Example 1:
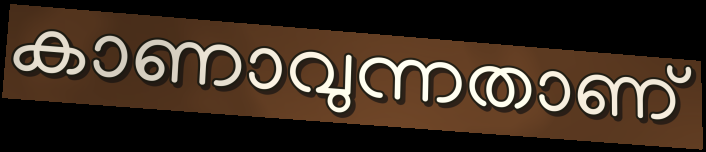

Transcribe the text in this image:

കാണാവുന്നതാണ്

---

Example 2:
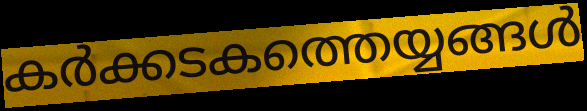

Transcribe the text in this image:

കർക്കടകത്തെയ്യങ്ങൾ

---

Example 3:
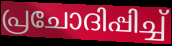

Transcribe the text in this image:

പ്രചോദിപ്പിച്ച്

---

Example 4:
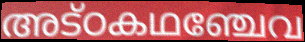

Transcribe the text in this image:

അട്ഠകഥഞ്ചേവ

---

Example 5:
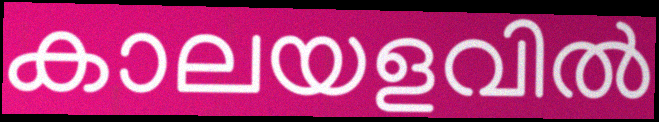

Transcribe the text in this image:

കാലയളവിൽ